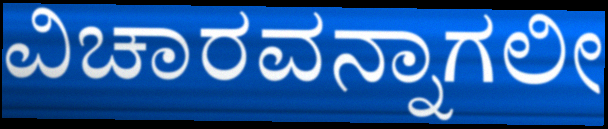
ವಿಚಾರವನ್ನಾಗಲೀ